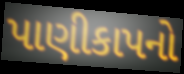
પાણીકાપનો